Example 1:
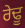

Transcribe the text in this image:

ਰੇਢੂ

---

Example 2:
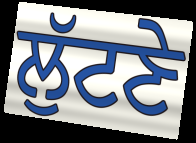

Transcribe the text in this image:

ਲੁੱਟਣੇ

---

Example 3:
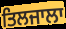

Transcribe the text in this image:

ਤਿਲਜਾਲਾ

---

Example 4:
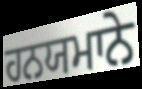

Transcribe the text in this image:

ਹਨਯਮਾਨੇ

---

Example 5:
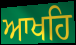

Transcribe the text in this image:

ਆਖਹਿ